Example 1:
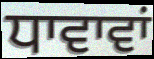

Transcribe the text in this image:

ਧਾਵਾਵਾਂ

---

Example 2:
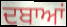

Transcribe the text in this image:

ਦਬਾਆਂ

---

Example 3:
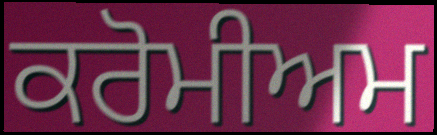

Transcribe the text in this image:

ਕਰੋਮੀਅਮ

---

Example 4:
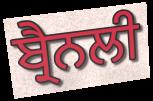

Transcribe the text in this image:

ਬ੍ਰੈਨਲੀ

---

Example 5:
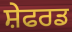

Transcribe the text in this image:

ਸ਼ੇਫਰਡ